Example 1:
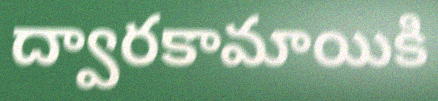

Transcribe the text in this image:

ద్వారకామాయికి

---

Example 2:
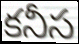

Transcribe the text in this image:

కనీస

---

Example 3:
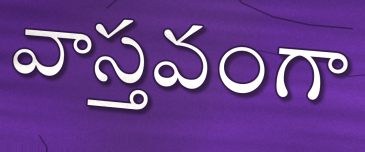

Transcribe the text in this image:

వాస్తవంగా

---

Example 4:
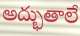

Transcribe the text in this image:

అద్భుతాలే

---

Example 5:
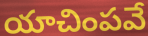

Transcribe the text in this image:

యాచింపవే